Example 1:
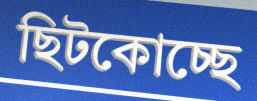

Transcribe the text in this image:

ছিটকোচ্ছে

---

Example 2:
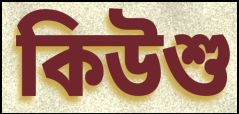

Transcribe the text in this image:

কিউশু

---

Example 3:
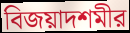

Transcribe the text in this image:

বিজয়াদশমীর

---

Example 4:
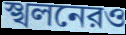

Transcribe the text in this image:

স্খলনেরও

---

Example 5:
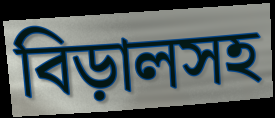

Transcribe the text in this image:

বিড়ালসহ